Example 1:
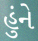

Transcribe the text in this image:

હુંને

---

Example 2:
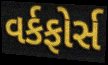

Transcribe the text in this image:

વર્કફોર્સ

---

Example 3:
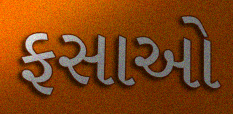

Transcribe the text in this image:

ફસાઓ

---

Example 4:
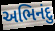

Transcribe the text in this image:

અભિનંદુ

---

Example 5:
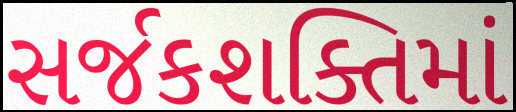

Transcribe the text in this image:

સર્જકશક્તિમાં